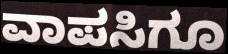
ವಾಪಸಿಗೂ